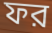
ফর